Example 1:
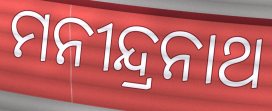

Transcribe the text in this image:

ମନୀନ୍ଦ୍ରନାଥ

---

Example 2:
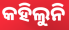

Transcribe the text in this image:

କହିଲୁନି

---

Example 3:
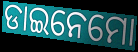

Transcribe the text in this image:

ଡାଇନେମୋ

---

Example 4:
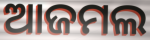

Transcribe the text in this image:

ଆଜମଲ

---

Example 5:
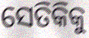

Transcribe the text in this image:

ସେତିକିକୁ